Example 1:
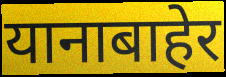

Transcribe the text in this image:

यानाबाहेर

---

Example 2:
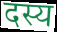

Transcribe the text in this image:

दस्य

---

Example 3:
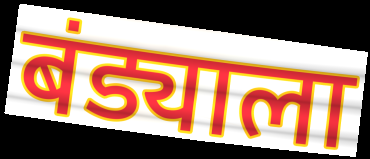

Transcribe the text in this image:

बंड्याला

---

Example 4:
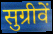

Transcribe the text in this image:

सुग्रीवें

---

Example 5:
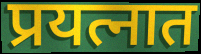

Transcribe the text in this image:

प्रयत्नात